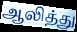
ஆலித்து